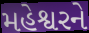
મહેશ્વરને